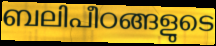
ബലിപീഠങ്ങളുടെ